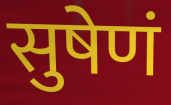
सुषेणं